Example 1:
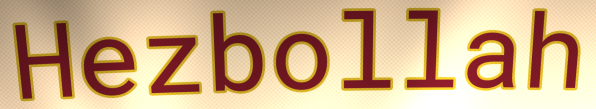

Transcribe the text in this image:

Hezbollah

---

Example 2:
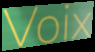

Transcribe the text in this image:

Voix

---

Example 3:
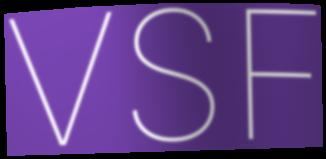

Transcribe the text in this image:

VSF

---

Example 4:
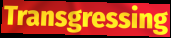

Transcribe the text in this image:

Transgressing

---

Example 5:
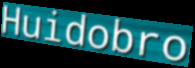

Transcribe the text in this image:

Huidobro